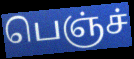
பெஞ்ச்